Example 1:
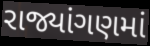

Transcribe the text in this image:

રાજ્યાંગણમાં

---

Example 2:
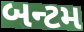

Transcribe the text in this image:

બન્ટમ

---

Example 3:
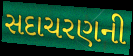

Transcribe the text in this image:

સદાચરણની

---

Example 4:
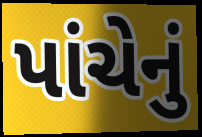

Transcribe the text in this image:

પાંચેનું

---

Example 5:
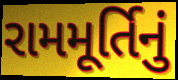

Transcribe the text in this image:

રામમૂર્તિનું